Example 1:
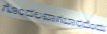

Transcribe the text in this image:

ಗೊಂದಲವಾಗಬಾರದೆಂದು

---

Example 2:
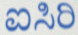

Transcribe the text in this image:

ಐಸಿರಿ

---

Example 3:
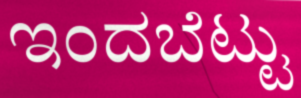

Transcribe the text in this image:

ಇಂದಬೆಟ್ಟು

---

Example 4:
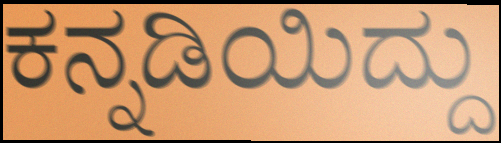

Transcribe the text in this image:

ಕನ್ನಡಿಯಿದ್ದು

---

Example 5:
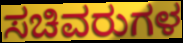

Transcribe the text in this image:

ಸಚಿವರುಗಳ